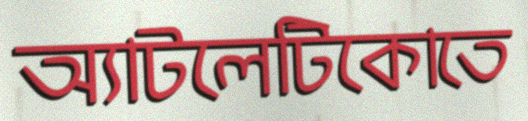
অ্যাটলেটিকোতে